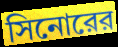
সিনোরের